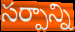
సర్పాన్ని